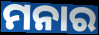
ମନାର